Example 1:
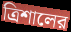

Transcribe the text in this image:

ত্রিশালের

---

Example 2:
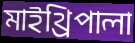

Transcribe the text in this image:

মাইথ্রিপালা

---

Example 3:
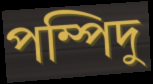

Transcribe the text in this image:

পম্পিদু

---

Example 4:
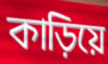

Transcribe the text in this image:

কাড়িয়ে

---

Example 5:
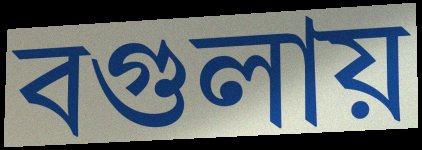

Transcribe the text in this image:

বগুলায়